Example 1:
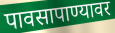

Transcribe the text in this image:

पावसापाण्यावर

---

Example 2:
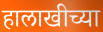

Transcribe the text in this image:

हालाखीच्या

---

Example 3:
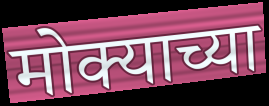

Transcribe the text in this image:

मोक्याच्या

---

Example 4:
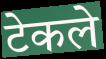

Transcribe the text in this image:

टेकले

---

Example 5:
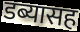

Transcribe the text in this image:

डब्यासह